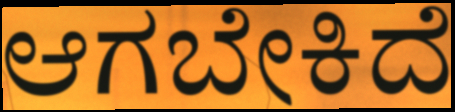
ಆಗಬೇಕಿದೆ